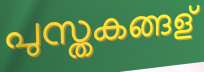
പുസ്തകങ്ങള്